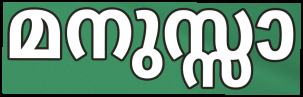
മനുസ്സാ